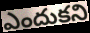
ఎందుకని